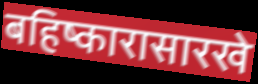
बहिष्कारासारखे